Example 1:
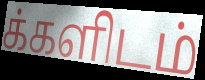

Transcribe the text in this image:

க்களிடம்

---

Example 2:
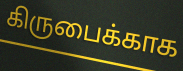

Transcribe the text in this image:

கிருபைக்காக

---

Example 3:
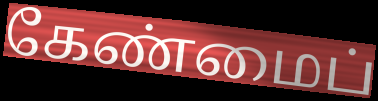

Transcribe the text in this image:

கேண்மைப்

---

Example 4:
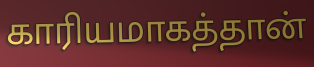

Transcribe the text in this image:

காரியமாகத்தான்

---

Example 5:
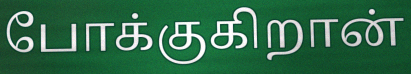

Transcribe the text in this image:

போக்குகிறான்